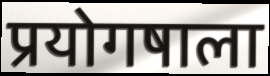
प्रयोगषाला